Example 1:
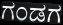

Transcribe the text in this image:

ಗಂಡಗ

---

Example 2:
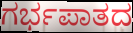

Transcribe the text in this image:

ಗರ್ಭಪಾತದ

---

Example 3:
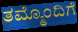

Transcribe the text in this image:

ತಮ್ಮೊಂದಿಗೆ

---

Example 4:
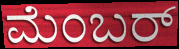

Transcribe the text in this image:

ಮೆಂಬರ್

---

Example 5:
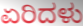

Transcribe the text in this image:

ಏರಿದಳು